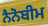
ਨੈਨੋਬੀਮ